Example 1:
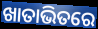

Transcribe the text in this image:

ଖାତାଭିତରେ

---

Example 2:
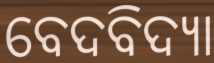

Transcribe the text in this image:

ବେଦବିଦ୍ୟା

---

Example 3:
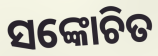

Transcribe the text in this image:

ସଙ୍କୋଚିତ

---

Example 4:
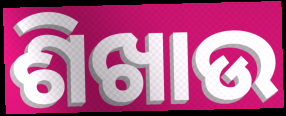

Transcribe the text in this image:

ଶିଖାଉ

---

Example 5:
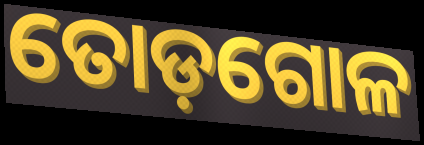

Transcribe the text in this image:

ତୋଡ଼ଗୋଳ